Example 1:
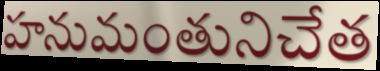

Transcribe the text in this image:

హనుమంతునిచేత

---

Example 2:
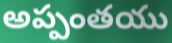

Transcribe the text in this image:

అప్పంతయు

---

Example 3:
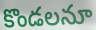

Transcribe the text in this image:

కొండలనూ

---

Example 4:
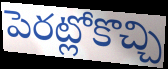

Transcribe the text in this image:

పెరట్లోకొచ్చి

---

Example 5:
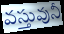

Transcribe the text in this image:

వస్తువునీ